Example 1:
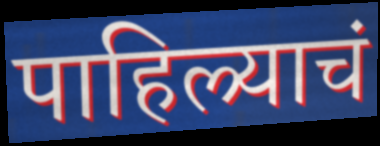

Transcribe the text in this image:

पाहिल्याचं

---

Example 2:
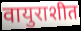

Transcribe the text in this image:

वायुराशीत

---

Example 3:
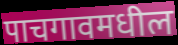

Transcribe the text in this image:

पाचगावमधील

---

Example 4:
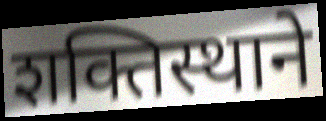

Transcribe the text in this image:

शक्तिस्थाने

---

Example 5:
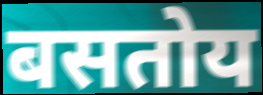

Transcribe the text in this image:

बसतोय